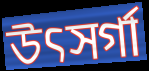
উৎসৰ্গা